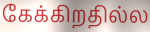
கேக்கிறதில்ல